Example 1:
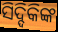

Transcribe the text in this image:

ସିଦ୍ଦିକିଙ୍କ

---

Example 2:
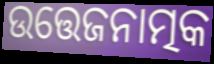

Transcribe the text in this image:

ଉତ୍ତେଜନାତ୍ମକ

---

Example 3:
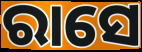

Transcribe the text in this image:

ରାସେ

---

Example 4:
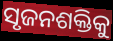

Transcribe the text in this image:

ସୃଜନଶକ୍ତିକୁ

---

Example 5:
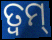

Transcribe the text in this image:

ତ୍ଵମ୍